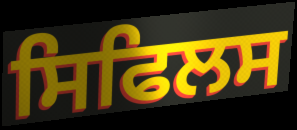
ਸਿਫਿਲਸ